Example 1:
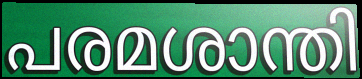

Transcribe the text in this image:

പരമശാന്തി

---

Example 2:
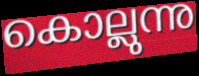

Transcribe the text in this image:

കൊല്ലുന്നു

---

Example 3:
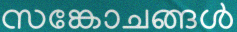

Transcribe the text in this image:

സങ്കോചങ്ങൾ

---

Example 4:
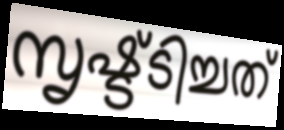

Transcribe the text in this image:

സൃഷ്ട്ടിച്ചത്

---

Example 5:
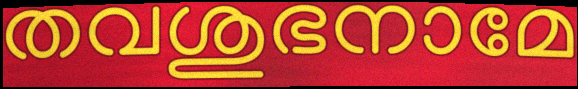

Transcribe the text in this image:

തവശുഭനാമേ